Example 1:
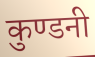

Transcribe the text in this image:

कुण्डनी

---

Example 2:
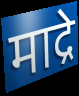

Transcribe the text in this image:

माद्रे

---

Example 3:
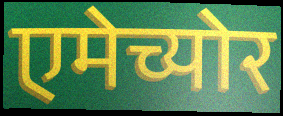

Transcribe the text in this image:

एमेच्योर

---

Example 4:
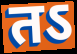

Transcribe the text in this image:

तऽ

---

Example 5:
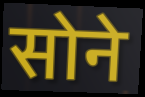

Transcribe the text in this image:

सोने